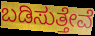
ಬಡಿಸುತ್ತೇವೆ